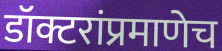
डॉक्टरांप्रमाणेच